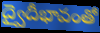
ద్వైదీభావంతో